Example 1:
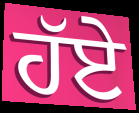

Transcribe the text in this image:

ਹੱਏ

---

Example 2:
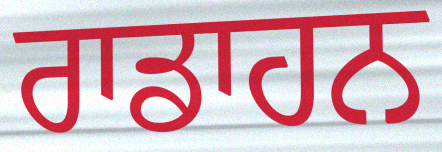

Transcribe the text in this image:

ਰਾਡਾਹਨ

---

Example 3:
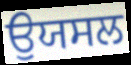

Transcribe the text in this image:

ਉਯਸਲ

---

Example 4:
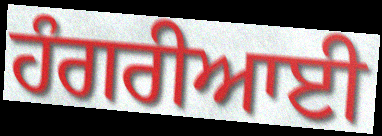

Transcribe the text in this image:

ਹੰਗਰੀਆਈ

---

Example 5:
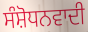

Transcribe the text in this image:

ਸੰਸ਼ੋਧਨਵਾਦੀ